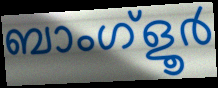
ബാംഗ്ളൂർ